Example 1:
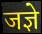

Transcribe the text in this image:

जज्ञे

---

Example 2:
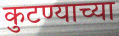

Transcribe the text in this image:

कुटण्याच्या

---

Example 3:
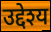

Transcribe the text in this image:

उद्देश्य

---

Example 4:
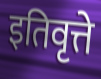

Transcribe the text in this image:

इतिवृत्ते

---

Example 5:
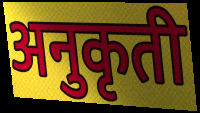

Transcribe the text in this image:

अनुकृती